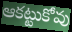
ఆకట్టుకోవు